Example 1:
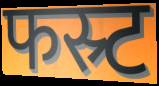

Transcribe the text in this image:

फस्र्ट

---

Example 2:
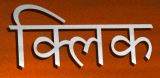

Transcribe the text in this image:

क्लिक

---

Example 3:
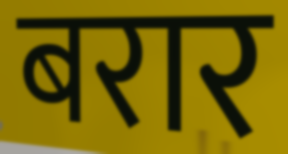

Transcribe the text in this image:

बरार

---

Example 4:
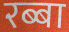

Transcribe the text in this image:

रब्बा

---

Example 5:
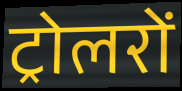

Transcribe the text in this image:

ट्रोलरों